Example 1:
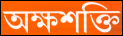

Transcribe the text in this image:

অক্ষশক্তি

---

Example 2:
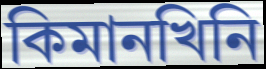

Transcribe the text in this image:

কিমানখিনি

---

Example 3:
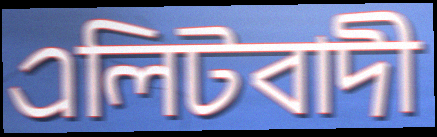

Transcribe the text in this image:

এলিটবাদী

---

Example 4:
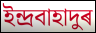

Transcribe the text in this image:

ইন্দ্ৰবাহাদুৰ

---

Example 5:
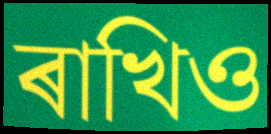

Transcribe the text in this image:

ৰাখিও